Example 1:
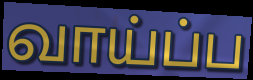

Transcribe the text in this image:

வாய்ப்ப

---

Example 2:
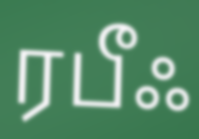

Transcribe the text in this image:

ரபீஃ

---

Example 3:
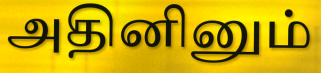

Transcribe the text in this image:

அதினினும்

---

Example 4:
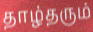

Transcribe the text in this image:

தாழ்தரும்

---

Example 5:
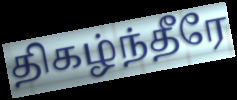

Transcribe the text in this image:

திகழ்ந்தீரே